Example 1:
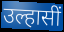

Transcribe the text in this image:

उल्हासीं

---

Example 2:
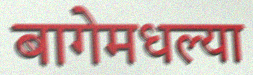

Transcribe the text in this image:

बागेमधल्या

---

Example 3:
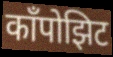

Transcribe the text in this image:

काँपोझिट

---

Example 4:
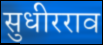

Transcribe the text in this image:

सुधीरराव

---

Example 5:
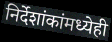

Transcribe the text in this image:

निर्देशांकांमध्येही